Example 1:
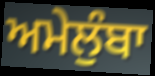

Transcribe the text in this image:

ਅਮੇਲੁੰਬਾ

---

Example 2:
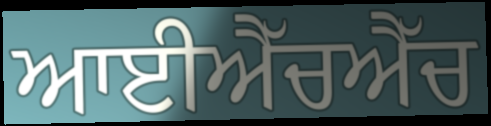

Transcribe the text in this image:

ਆਈਐੱਚਐੱਚ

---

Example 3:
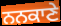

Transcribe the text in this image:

ਨਨਕਾਣੇ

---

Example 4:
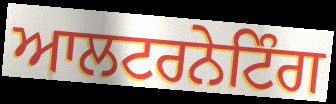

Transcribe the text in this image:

ਆਲਟਰਨੇਟਿੰਗ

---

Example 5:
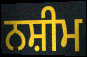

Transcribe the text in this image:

ਨਸ਼ੀਮ